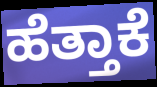
ಹೆತ್ತಾಕೆ